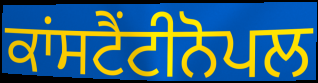
ਕਾਂਸਟੈਂਟੀਨੋਪਲ